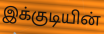
இக்குடியின்